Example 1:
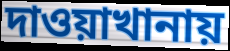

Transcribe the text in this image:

দাওয়াখানায়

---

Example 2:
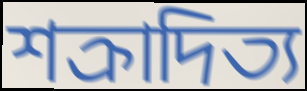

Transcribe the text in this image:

শক্রাদিত্য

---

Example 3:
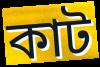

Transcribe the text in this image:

কাট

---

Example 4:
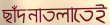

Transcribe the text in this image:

ছাঁদনাতলাতেই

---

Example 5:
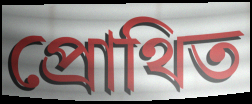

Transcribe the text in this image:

প্রোথিত